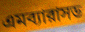
এমব্যারাসড